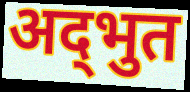
अद्‌भुत